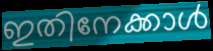
ഇതിനേക്കാൾ